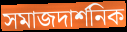
সমাজদার্শনিক